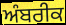
ਅੰਬਰੀਕ